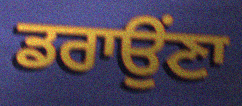
ਡਰਾਉਂਣਾ